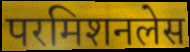
परमिशनलेस